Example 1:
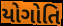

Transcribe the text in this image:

યોગોતિ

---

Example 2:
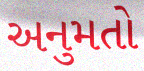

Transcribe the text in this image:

અનુમતો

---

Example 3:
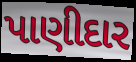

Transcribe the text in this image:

પાણીદાર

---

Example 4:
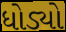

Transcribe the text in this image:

ધોડ્યો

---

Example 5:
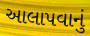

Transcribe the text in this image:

આલાપવાનું